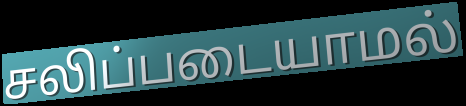
சலிப்படையாமல்